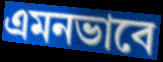
এমনভাবে